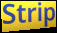
Strip